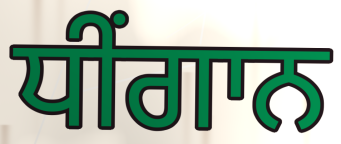
ਧੀਂਗਾਨ